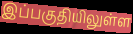
இப்பகுதியிலுள்ள